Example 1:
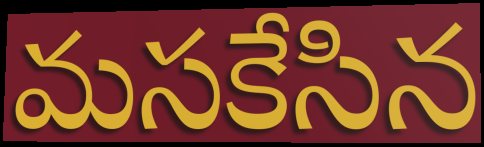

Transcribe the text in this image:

మసకేసిన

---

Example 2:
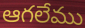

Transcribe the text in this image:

ఆగలేము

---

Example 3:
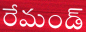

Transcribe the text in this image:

రేమండ్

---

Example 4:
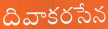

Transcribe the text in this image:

దివాకరసేన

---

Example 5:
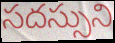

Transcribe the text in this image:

సదస్సుని